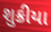
શુક્રીયા